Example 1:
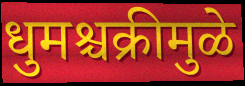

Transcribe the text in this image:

धुमश्चक्रीमुळे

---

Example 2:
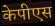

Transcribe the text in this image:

केपीएस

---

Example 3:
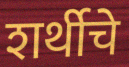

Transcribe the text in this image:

शर्थीचे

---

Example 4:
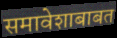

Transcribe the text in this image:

समावेशाबाबत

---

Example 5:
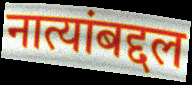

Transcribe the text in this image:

नात्यांबद्दल